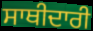
ਸਾਥੀਦਾਰੀ